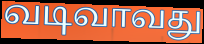
வடிவாவது